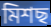
মিশছ